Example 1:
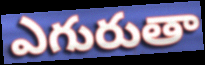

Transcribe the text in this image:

ఎగురుతా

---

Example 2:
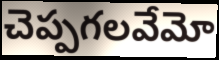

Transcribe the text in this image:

చెప్పగలవేమో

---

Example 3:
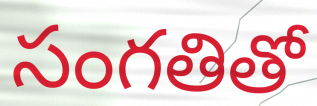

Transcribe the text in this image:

సంగతితో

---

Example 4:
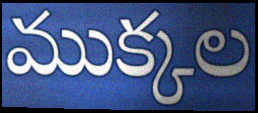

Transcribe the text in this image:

ముక్కల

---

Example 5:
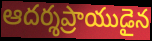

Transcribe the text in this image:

ఆదర్శప్రాయుడైన